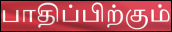
பாதிப்பிற்கும்